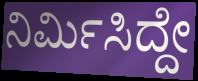
ನಿರ್ಮಿಸಿದ್ದೇ